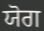
ਯੋਗ